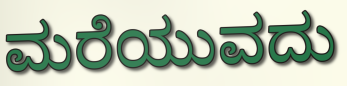
ಮರೆಯುವದು